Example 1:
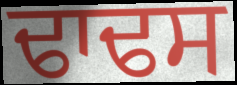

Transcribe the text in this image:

ਢਾਢਸ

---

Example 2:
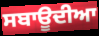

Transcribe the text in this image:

ਸਬਾਊਦੀਆ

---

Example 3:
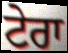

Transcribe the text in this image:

ਟੇਰਾ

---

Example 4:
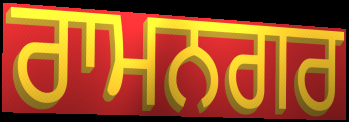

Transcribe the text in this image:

ਰਾਮਨਗਰ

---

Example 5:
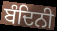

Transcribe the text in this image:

ਬੰਦਿਨੀ